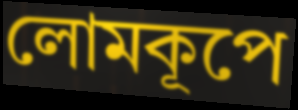
লোমকূপে